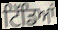
ਟਿੱਡਿਆਂ